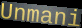
Unmani